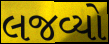
લજવ્યો